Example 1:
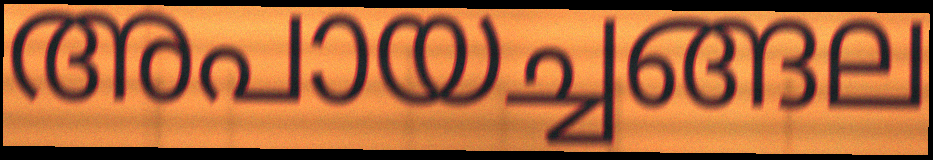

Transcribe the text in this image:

അപായച്ചങ്ങല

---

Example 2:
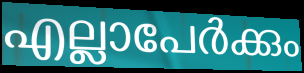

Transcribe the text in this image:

എല്ലാപേർക്കും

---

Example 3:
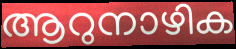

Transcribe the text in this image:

ആറുനാഴിക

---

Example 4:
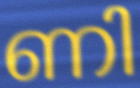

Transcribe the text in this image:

ണി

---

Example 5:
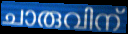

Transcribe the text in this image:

ചാരുവിന്